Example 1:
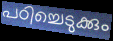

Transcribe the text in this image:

പഠിച്ചെടുക്കും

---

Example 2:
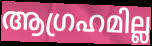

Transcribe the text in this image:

ആഗ്രഹമില്ല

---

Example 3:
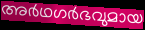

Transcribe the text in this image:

അർഥഗർഭവുമായ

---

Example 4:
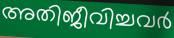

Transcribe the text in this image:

അതിജീവിച്ചവർ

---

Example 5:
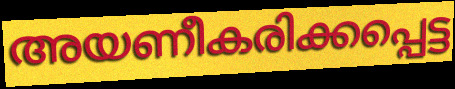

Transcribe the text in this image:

അയണീകരിക്കപ്പെട്ട